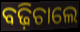
ବଢ଼ିଚାଲେ